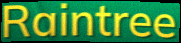
Raintree